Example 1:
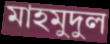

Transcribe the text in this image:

মাহমুদুল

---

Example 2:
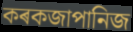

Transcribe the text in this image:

কৰকজাপানিজ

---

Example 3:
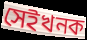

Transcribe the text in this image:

সেইখনক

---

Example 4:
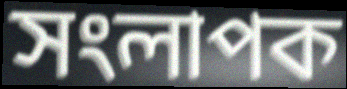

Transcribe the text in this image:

সংলাপক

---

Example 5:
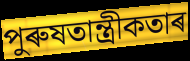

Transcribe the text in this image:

পুৰুষতান্ত্ৰীকতাৰ